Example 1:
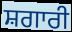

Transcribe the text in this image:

ਸ਼ਗਾਰੀ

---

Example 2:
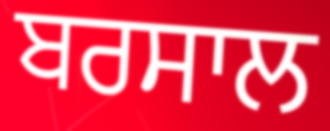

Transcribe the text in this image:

ਬਰਸਾਲ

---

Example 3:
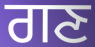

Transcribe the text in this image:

ਗਣ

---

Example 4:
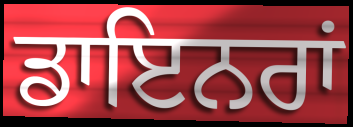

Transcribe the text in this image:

ਡਾਇਨਰਾਂ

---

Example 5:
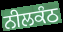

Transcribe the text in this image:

ਨੀਲਕੰਠ